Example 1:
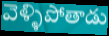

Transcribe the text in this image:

వెళ్ళిపోతాడు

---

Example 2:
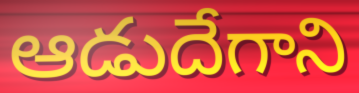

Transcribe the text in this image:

ఆడుదేగాని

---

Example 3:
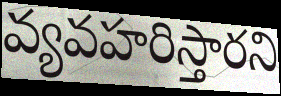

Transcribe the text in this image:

వ్యవహరిస్తారని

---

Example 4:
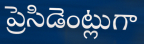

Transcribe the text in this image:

ప్రెసిడెంట్లుగా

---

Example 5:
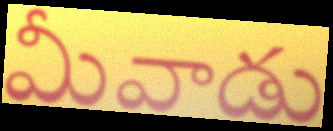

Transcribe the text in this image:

మీవాడు